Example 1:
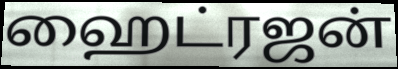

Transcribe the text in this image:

ஹைட்ரஜன்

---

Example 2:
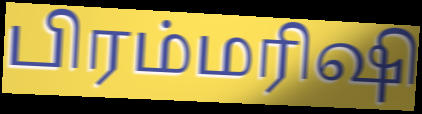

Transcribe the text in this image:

பிரம்மரிஷி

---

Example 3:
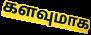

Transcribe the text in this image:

களவுமாக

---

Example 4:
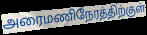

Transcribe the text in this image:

அரைமணிநேரத்திற்குள்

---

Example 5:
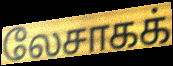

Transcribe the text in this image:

லேசாகக்